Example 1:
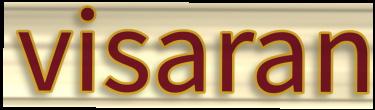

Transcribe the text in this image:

visaran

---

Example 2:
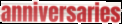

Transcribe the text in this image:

anniversaries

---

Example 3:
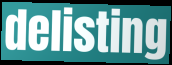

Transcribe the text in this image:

delisting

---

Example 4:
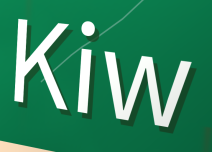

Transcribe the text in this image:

Kiw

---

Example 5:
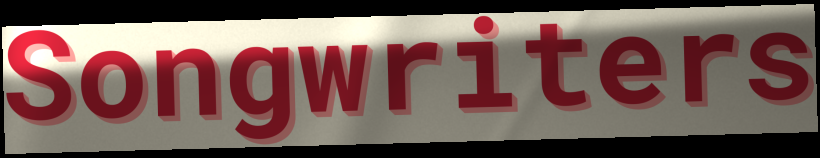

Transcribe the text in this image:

Songwriters